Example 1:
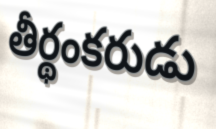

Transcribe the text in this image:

తీర్థంకరుడు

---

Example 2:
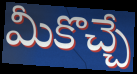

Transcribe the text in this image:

మీకొచ్చే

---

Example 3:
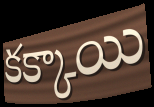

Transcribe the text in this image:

కక్కాయి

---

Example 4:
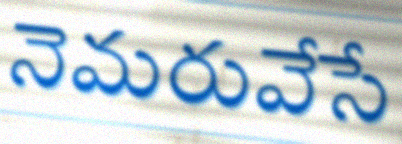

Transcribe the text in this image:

నెమరువేసే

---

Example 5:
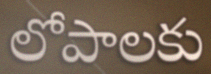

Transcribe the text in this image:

లోపాలకు